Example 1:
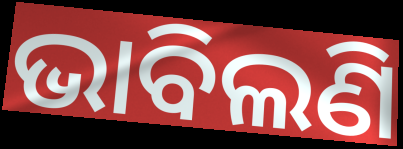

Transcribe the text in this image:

ଭାବିଲଣି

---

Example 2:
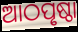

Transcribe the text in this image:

ଆଠପୃଷ୍ଠା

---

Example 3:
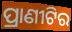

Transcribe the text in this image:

ପ୍ରାଣୀଟିର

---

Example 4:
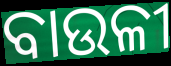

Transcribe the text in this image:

ବାଉଳୀ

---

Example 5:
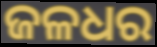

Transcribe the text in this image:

ଜଳଧର